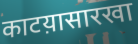
काटय़ासारखा